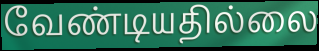
வேண்டியதில்லை